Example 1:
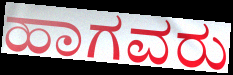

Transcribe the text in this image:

ಹಾಗವರು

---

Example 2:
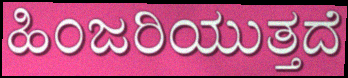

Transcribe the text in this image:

ಹಿಂಜರಿಯುತ್ತದೆ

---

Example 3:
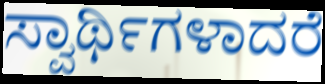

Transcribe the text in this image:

ಸ್ವಾರ್ಥಿಗಳಾದರೆ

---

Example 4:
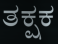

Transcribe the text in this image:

ತಕ್ಷಕ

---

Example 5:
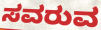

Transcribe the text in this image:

ಸವರುವ